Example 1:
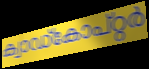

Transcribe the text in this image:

ക്വാഡ്കോപ്റ്റർ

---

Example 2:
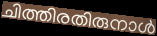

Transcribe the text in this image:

ചിത്തിരതിരുനാൾ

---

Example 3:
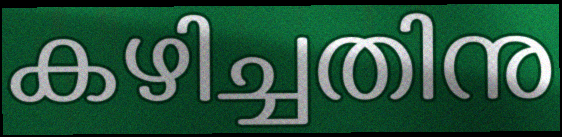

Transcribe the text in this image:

കഴിച്ചതിനു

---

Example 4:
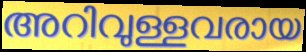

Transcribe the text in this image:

അറിവുള്ളവരായ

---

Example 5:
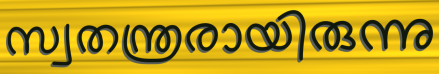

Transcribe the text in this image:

സ്വതന്ത്രരായിരുന്നു